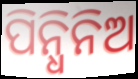
ପିନ୍ଧିନିଅ